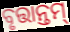
ବୃତ୍ତାନ୍ତମ୍